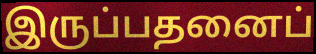
இருப்பதனைப்